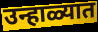
उन्हाळ्यात